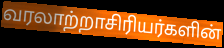
வரலாற்றாசிரியர்களின்